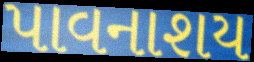
પાવનાશય